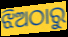
ଝିଅଠାରୁ